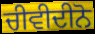
ਚੀਵੀਦੀਨੋ